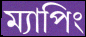
ম্যাপিং